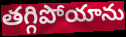
తగ్గిపోయాను